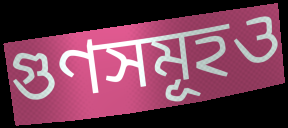
গুণসমূহও